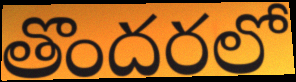
తొందరలో